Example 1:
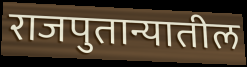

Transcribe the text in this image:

राजपुतान्यातील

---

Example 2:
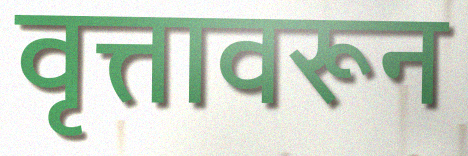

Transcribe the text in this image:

वृत्तावरून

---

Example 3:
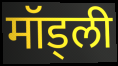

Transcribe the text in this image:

मॉड्ली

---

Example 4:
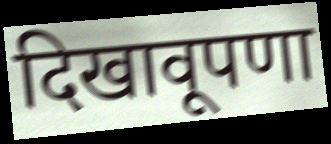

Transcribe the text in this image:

दिखावूपणा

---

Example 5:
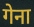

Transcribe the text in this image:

गेना